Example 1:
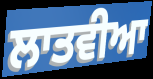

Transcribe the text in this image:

ਲਾਤਵੀਆ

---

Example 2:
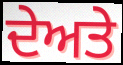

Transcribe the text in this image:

ਦੇਅਤੇ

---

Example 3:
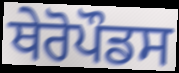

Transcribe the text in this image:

ਥੇਰੋਪੌਡਸ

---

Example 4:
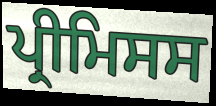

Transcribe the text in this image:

ਪ੍ਰੀਮਿਸਸ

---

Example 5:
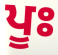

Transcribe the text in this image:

ਪੂਃ